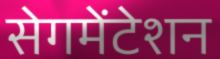
सेगमेंटेशन